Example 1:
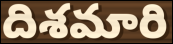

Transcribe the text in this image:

దిశమారి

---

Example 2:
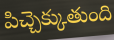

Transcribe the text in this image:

పిచ్చెక్కుతుంది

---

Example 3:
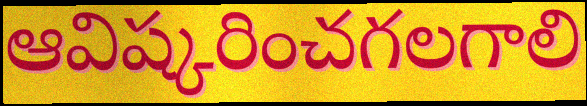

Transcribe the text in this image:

ఆవిష్కరించగలగాలి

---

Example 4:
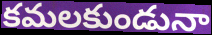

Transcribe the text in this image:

కమలకుండునా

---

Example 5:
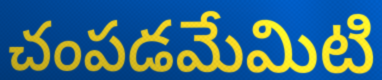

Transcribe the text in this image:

చంపడమేమిటి